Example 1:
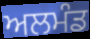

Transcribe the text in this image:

ਅਲਮੰਡ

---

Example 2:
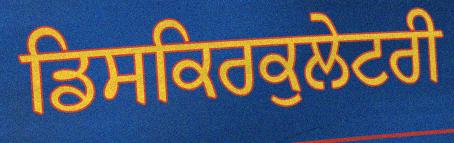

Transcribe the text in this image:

ਡਿਸਕਿਰਕੁਲੇਟਰੀ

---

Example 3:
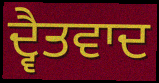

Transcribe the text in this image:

ਦ੍ਵੈਤਵਾਦ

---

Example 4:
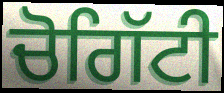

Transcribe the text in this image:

ਚੋਗਿੱਟੀ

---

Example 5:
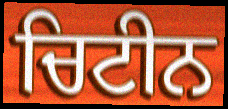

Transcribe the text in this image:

ਚਿਟੀਨ